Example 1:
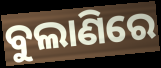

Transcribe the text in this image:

ବୁଲାଣିରେ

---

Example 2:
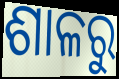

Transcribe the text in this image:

ଶାଳରୁ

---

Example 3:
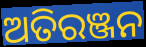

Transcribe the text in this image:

ଅତିରଞ୍ଜନ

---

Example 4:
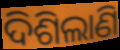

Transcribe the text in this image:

ଦିଶିଲାଣି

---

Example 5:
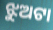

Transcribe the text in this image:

ଝୁଅଟା